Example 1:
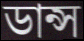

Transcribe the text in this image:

ডান্স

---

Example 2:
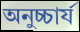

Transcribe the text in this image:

অনুচ্চার্য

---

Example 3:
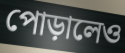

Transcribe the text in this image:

পোড়ালেও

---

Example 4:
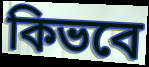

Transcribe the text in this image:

কিভবে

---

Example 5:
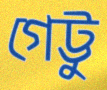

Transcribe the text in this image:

গেট্টু